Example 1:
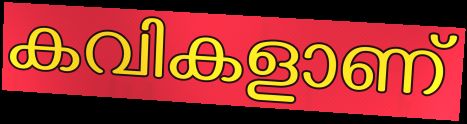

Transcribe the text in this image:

കവികളാണ്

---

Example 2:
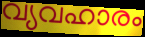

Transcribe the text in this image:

വ്യവഹാരം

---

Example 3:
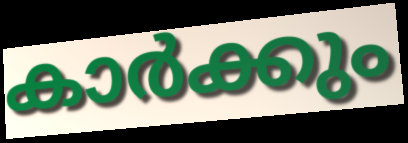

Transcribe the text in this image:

കാർക്കും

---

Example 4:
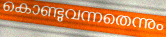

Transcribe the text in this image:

കൊണ്ടുവന്നതെന്നും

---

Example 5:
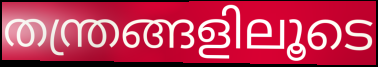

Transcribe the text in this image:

തന്ത്രങ്ങളിലൂടെ